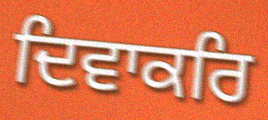
ਦਿਵਾਕਰਿ